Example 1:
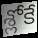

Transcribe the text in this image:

శ్లోకే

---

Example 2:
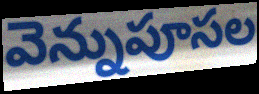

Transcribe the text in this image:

వెన్నుపూసల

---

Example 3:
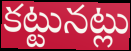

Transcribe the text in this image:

కట్టునట్లు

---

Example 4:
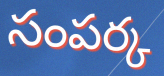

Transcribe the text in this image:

సంపర్క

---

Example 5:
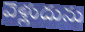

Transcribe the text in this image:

వెళ్లుదును